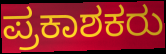
ಪ್ರಕಾಶಕರು